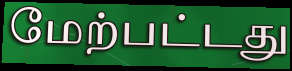
மேற்பட்டது